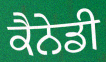
ਕੈਨੇਡੀ